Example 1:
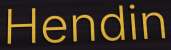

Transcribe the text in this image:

Hendin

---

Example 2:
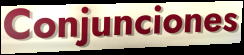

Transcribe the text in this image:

Conjunciones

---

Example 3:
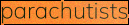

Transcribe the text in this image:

parachutists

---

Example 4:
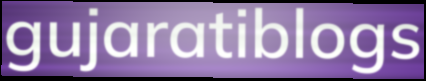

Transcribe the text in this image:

gujaratiblogs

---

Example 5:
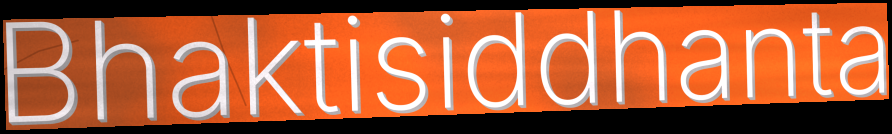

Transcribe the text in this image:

Bhaktisiddhanta